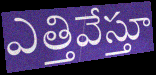
ఎత్తివేస్తూ